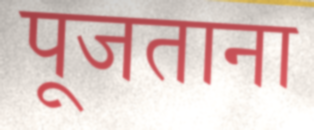
पूजताना